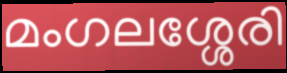
മംഗലശ്ശേരി